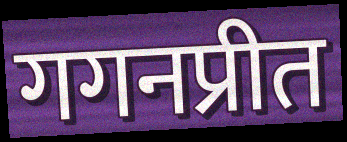
गगनप्रीत